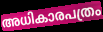
അധികാരപത്രം